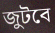
জুটবে